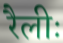
रैलीः